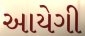
આયેગી